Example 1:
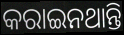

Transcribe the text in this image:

କରାଇନଥାନ୍ତି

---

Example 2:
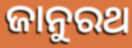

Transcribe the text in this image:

ଜାନୁରଥ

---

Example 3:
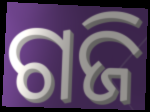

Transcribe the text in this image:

ଗଜି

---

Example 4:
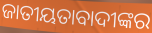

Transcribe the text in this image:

ଜାତୀୟତାବାଦୀଙ୍କର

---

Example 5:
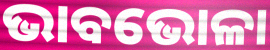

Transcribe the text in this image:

ଭାବଭୋଳା